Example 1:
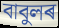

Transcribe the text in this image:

বাবুলৰ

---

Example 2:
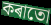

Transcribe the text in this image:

কৰাতো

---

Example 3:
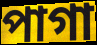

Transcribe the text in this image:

পাগা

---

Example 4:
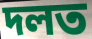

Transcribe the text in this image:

দলত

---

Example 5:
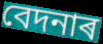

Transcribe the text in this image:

বেদনাৰ